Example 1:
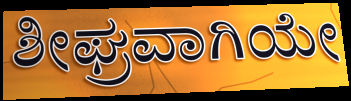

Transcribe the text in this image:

ಶೀಘ್ರವಾಗಿಯೇ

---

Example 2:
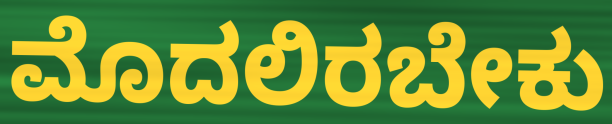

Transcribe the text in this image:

ಮೊದಲಿರಬೇಕು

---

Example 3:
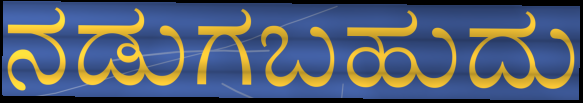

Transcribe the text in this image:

ನಡುಗಬಹುದು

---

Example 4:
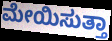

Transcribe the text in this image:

ಮೇಯಿಸುತ್ತಾ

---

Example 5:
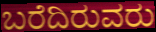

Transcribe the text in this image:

ಬರೆದಿರುವರು